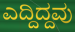
ಎದ್ದಿದ್ದವು